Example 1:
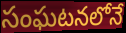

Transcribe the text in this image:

సంఘటనలోనే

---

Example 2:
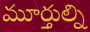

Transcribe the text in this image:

మూర్తుల్ని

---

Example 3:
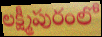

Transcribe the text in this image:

లక్ష్మీపురంలో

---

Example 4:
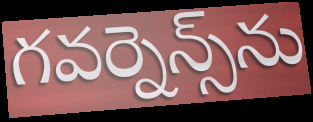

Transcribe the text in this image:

గవర్నెన్స్‌ను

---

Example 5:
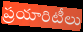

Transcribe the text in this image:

ప్రయారిటీలు